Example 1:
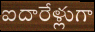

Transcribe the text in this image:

ఐదారేళ్లుగా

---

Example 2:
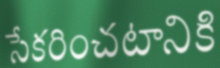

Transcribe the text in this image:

సేకరించటానికి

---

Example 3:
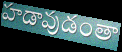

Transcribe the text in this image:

హడావుడంతా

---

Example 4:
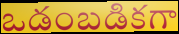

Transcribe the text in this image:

ఒడంబడికగా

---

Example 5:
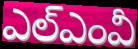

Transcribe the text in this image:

ఎల్ఎంవీ